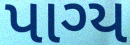
પાગ્ય